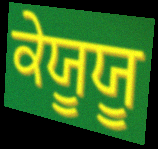
ਕੇਯੂਯੂ